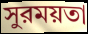
সুরময়তা